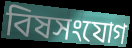
বিষসংযোগ